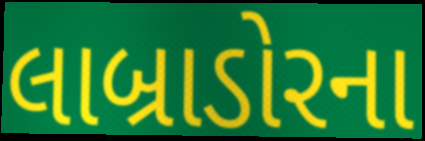
લાબ્રાડોરના